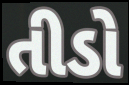
તીડો